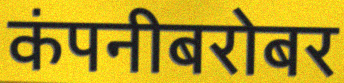
कंपनीबरोबर